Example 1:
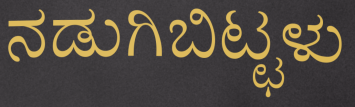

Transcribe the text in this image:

ನಡುಗಿಬಿಟ್ಟಳು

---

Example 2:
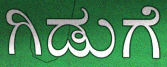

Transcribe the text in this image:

ಗಿಡುಗೆ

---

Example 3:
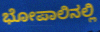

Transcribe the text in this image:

ಭೋಪಾಲಿನಲ್ಲಿ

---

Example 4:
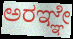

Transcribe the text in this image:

ಅರಞ್ಞೇ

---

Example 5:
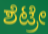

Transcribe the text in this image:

ಶೆಟ್ರೇ